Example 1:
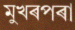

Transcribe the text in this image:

মুখৰপৰা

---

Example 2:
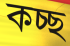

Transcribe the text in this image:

কচ্ছ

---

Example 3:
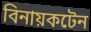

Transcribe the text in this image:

বিনায়কটেন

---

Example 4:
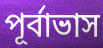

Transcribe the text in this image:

পূৰ্বাভাস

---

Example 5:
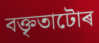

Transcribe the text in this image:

বক্তৃতাটোৰ